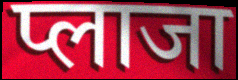
प्लाजा